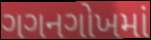
ગગનગોખમાં